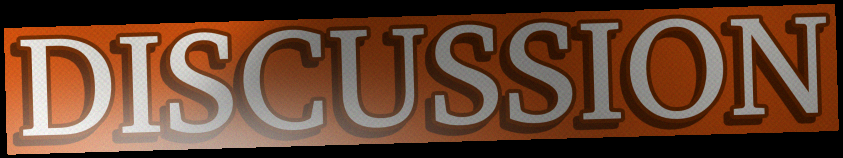
DISCUSSION